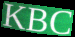
KBC